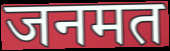
जनमत